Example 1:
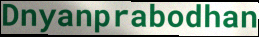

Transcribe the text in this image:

Dnyanprabodhan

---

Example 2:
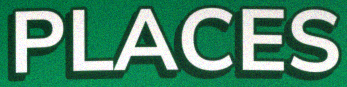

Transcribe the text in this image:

PLACES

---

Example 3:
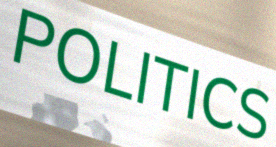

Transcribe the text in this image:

POLITICS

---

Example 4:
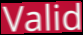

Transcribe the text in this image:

Valid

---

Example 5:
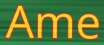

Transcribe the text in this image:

Ame